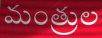
మంత్రుల